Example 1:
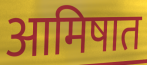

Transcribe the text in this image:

आमिषात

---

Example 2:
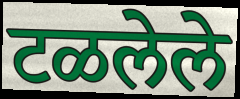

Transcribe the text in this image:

टळलेले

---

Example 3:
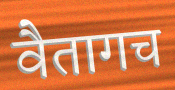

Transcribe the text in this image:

वैतागच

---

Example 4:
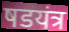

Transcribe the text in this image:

षडयंत्र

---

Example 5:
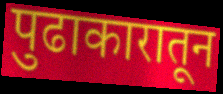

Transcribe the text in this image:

पुढाकारातून